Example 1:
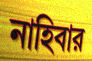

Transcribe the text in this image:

নাহিবার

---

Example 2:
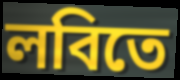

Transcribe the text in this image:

লবিতে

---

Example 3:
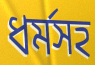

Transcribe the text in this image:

ধর্মসহ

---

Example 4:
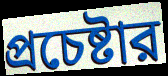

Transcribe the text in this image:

প্রচেষ্টার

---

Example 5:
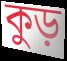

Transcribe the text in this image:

কুড়